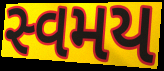
સ્વમય